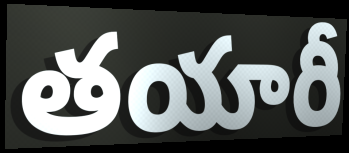
తయారీ